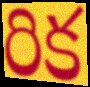
రిక